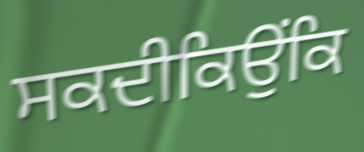
ਸਕਦੀਕਿਉਂਕਿ